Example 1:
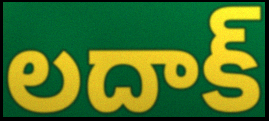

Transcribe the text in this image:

లదాక్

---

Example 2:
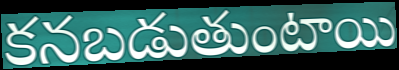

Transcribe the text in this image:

కనబడుతుంటాయి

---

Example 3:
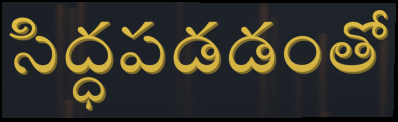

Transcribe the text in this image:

సిద్ధపడడంతో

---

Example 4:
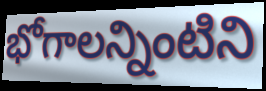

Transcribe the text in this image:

భోగాలన్నింటిని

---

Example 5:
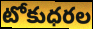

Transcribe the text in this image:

టోకుధరల